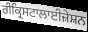
ਰੀਕ੍ਰਿਸਟਾਲਾਈਜ਼ੇਸ਼ਨ